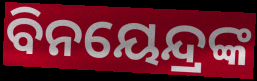
ବିନୟେନ୍ଦ୍ରଙ୍କ